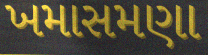
ખમાસમણા